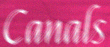
Canals